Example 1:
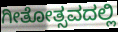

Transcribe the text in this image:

ಗೀತೋತ್ಸವದಲ್ಲಿ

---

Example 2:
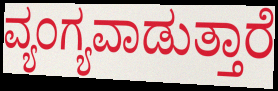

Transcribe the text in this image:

ವ್ಯಂಗ್ಯವಾಡುತ್ತಾರೆ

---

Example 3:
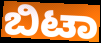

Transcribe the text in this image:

ಬಿಟಾ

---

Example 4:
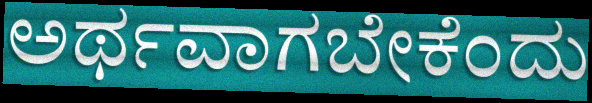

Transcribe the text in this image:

ಅರ್ಥವಾಗಬೇಕೆಂದು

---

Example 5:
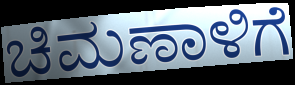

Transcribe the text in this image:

ಚಿಮಣಾಳಿಗೆ